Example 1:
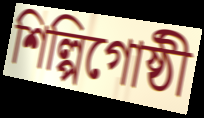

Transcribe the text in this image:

শিল্পিগোষ্ঠী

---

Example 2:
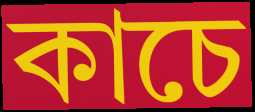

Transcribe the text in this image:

কাচে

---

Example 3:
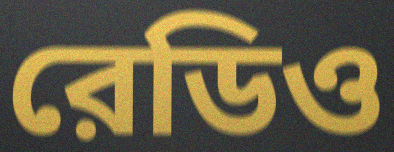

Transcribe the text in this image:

রেডিও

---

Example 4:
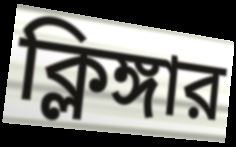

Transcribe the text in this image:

ক্লিঙ্গার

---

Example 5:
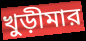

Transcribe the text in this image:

খুড়ীমার